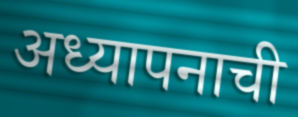
अध्यापनाची